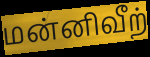
மன்னிவீற்